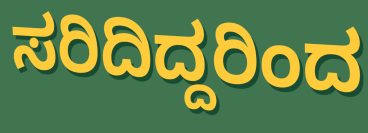
ಸರಿದಿದ್ದರಿಂದ